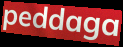
peddaga